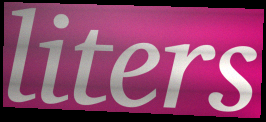
liters